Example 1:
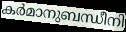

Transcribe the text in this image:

കർമാനുബന്ധീനി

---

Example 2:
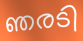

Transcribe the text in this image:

ഞരടി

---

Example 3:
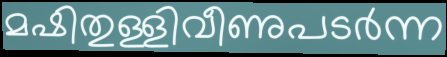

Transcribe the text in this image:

മഷിതുള്ളിവീണുപടർന്ന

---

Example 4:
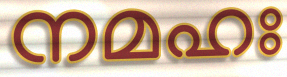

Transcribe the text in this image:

നമഹഃ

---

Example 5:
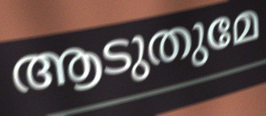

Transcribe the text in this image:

ആടുതുമേ